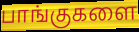
பாங்குகளை